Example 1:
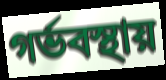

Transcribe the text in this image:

গর্ভবস্থায়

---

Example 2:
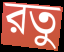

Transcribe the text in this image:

রতু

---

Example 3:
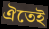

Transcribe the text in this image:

ঐতেই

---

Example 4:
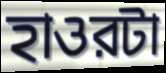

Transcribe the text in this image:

হাওরটা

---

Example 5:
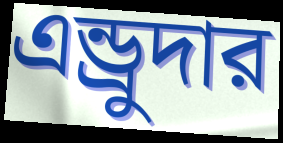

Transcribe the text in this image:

এন্ড্রুদার